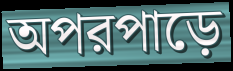
অপরপাড়ে